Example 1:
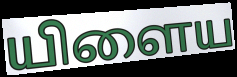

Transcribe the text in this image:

யிளைய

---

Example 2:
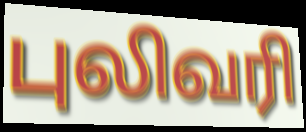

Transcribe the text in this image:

புலிவரி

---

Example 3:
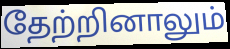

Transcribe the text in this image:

தேற்றினாலும்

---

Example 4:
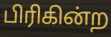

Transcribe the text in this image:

பிரிகின்ற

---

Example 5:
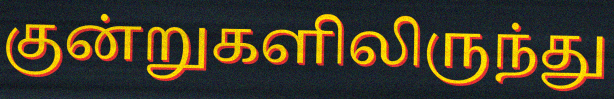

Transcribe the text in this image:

குன்றுகளிலிருந்து